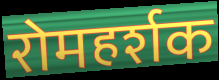
रोमहर्शक